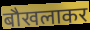
बौखलाकर